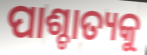
ପାଶ୍ଚାତ୍ୟକୁ